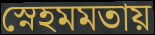
স্নেহমমতায়